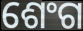
ଶେଂଗ